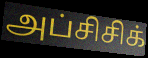
அப்சிசிக்